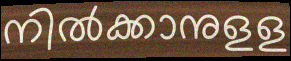
നിൽക്കാനുളള